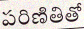
పరిణితితో